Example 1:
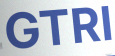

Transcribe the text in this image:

GTRI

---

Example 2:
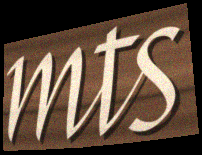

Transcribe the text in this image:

mts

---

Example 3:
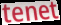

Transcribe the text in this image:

tenet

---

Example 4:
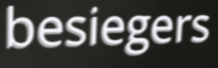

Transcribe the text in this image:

besiegers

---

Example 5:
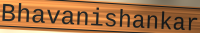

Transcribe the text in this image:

Bhavanishankar